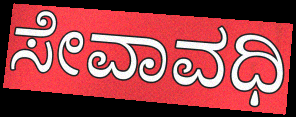
ಸೇವಾವಧಿ